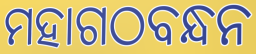
ମହାଗଠବନ୍ଧନ